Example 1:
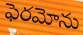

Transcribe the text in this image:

ఫెరమోను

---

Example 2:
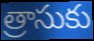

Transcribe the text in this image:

త్రాసుకు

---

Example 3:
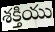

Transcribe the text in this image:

శక్తియు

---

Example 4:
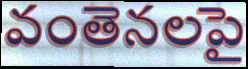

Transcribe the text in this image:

వంతెనలపై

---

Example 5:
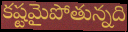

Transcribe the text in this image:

కష్టమైపోతున్నది